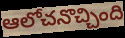
ఆలోచనొచ్చింది